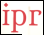
ipr